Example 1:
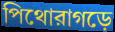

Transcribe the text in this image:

পিথোরাগড়ে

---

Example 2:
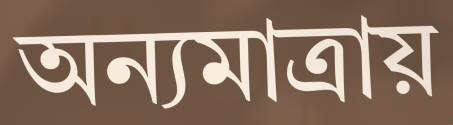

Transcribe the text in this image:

অন্যমাত্রায়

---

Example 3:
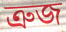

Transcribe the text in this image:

ত্রুজ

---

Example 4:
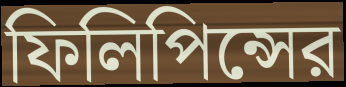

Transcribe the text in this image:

ফিলিপিন্সের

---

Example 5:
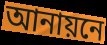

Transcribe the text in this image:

আনায়নে